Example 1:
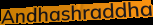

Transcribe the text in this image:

Andhashraddha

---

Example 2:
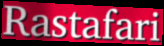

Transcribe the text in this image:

Rastafari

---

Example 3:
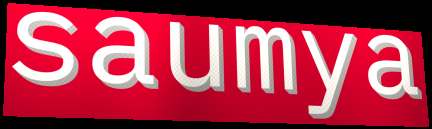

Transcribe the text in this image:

saumya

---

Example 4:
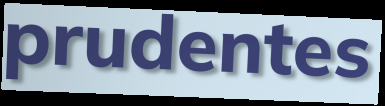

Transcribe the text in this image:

prudentes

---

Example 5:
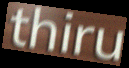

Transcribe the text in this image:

thiru